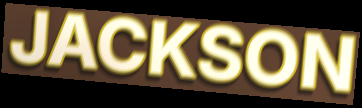
JACKSON